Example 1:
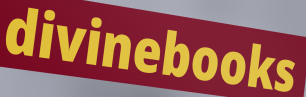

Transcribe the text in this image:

divinebooks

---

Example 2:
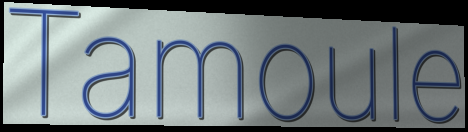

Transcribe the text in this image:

Tamoule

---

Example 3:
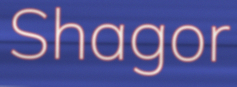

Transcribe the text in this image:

Shagor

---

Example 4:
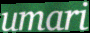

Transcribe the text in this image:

umari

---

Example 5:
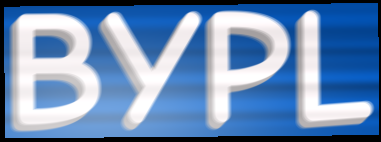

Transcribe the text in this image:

BYPL